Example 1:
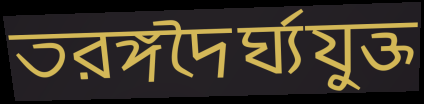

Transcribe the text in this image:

তরঙ্গদৈর্ঘ্যযুক্ত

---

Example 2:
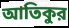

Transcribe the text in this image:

আতিকুর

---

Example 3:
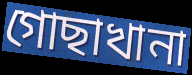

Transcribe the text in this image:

গোছাখানা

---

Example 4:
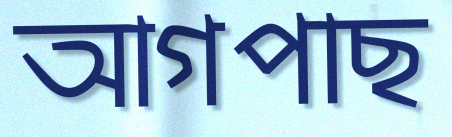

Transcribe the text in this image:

আগপাছ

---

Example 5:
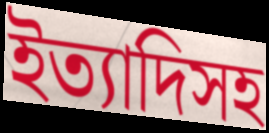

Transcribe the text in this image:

ইত্যাদিসহ